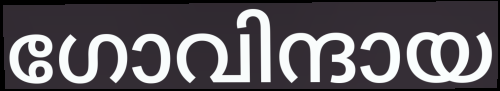
ഗോവിന്ദായ